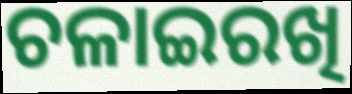
ଚଳାଇରଖି